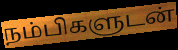
நம்பிகளுடன்